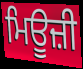
ਮਿਊਜ਼ੀ